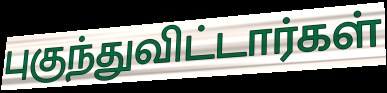
புகுந்துவிட்டார்கள்